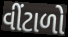
વીંટાળો